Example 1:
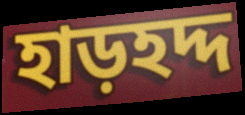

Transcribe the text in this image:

হাড়হদ্দ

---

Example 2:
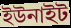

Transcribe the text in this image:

ইউনাইট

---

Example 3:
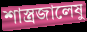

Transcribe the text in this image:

শাস্ত্রজালেষু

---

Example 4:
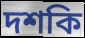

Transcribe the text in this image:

দশকি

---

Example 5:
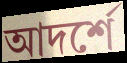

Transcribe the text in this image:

আদর্শে